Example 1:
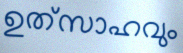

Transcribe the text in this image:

ഉത്‌സാഹവും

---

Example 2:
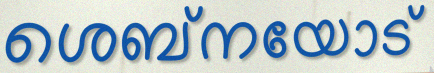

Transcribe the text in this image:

ശെബ്നയോട്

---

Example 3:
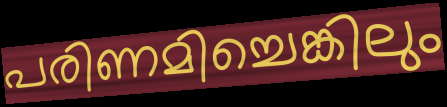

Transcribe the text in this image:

പരിണമിച്ചെങ്കിലും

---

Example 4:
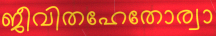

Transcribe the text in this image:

ജീവിതഹേതോര്വാ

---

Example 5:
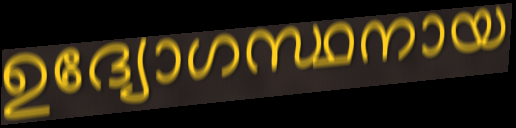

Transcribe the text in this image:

ഉദ്യോഗസ്ഥനായ